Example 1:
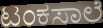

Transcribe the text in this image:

ಟಂಕಸಾಲೆ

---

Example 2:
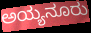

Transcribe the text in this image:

ಅಯ್ಯನೂರು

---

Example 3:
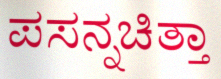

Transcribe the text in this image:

ಪಸನ್ನಚಿತ್ತಾ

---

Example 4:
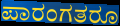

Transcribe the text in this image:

ಪಾರಂಗತರೂ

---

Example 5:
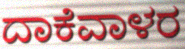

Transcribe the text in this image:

ದಾಕೆವಾಳರ